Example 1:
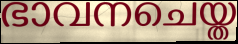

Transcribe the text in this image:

ഭാവനചെയ്ത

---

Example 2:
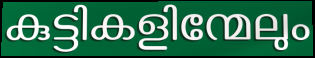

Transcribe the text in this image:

കുട്ടികളിന്മേലും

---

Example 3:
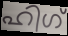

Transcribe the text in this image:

ഹിഗ്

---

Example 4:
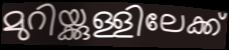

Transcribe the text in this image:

മുറിയ്ക്കുള്ളിലേക്ക്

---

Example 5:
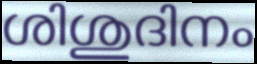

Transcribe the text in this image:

ശിശുദിനം